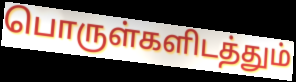
பொருள்களிடத்தும்